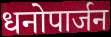
धनोपार्जन